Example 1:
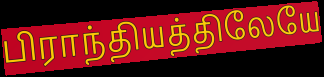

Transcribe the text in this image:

பிராந்தியத்திலேயே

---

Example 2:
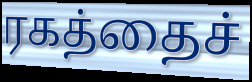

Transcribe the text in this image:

ரகத்தைச்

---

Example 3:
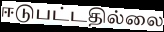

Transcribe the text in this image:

ஈடுபட்டதில்லை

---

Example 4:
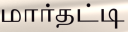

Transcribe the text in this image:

மார்தட்டி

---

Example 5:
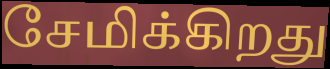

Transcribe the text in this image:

சேமிக்கிறது